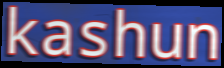
kashun